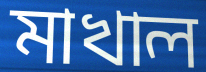
মাখাল